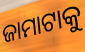
ଜାମାଟାକୁ